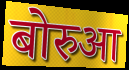
बोरुआ